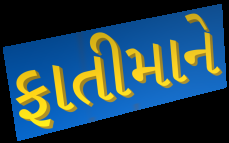
ફાતીમાને